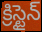
క్రిస్టైన్